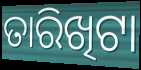
ତାରିଖିଟା